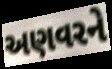
અણવરને